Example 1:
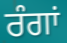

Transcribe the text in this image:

ਰੰਗਾਂ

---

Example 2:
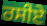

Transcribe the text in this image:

ਰਸੀਏ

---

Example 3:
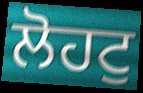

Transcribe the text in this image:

ਲੋਹਟੁ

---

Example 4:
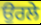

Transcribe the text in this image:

ਉਰਲੇ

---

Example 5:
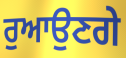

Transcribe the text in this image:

ਰੁਆਉਣਗੇ